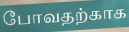
போவதற்காக